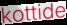
kottide